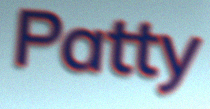
Patty